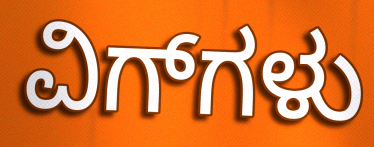
ವಿಗ್‌ಗಳು